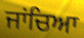
ਜਾਂਚਿਆ